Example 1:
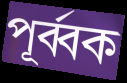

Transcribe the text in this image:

পূর্ব্বক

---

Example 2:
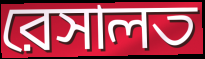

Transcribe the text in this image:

রেসালত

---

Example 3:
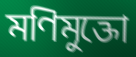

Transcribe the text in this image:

মণিমুক্তো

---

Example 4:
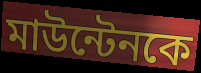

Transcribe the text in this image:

মাউন্টেনকে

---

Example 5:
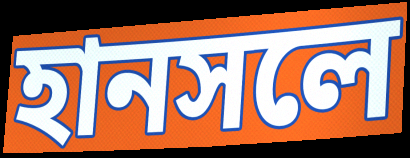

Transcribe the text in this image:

হানসলে